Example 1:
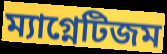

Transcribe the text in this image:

ম্যাগ্নেটিজম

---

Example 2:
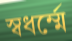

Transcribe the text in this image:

স্বধর্ম্মে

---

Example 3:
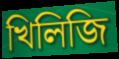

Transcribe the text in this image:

খিলিজি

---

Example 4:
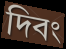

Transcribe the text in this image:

দিবং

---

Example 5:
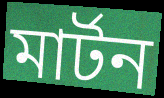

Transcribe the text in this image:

মার্টন